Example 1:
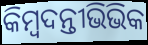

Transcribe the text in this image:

କିମ୍ବଦନ୍ତୀଭିଭିକ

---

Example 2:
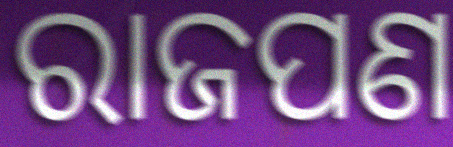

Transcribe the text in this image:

ରାଜପଣ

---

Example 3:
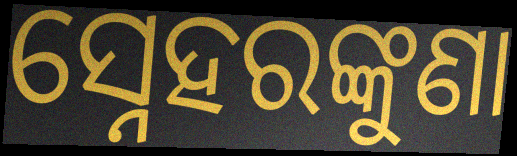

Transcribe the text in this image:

ସ୍ନେହରଙ୍କୁଣା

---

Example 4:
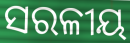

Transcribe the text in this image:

ସରଳୀୟ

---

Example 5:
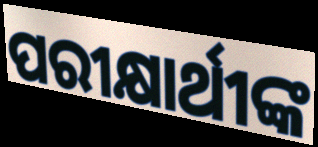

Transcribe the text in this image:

ପରୀକ୍ଷାର୍ଥୀଙ୍କ